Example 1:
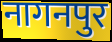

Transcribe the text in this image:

नागनपुर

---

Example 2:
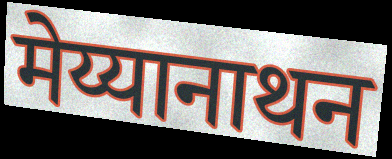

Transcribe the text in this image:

मेय्यानाथन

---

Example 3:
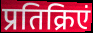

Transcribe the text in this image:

प्रतिक्रिएं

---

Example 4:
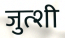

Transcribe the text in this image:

जुत्शी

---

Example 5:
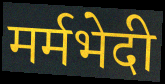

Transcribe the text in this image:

मर्मभेदी